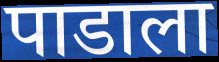
पाडाला